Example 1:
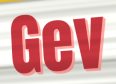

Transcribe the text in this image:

Gev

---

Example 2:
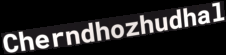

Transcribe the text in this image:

Cherndhozhudhal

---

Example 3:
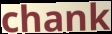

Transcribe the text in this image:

chank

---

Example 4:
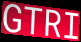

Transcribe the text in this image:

GTRI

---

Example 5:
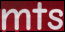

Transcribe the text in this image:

mts